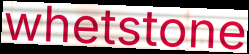
whetstone